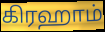
கிரஹாம்